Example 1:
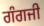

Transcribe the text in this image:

ਗੰਗਜੀ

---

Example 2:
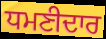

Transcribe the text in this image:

ਧਮਣੀਦਾਰ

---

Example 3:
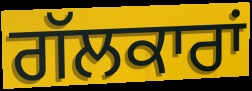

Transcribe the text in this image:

ਗੱਲਕਾਰਾਂ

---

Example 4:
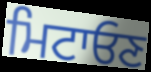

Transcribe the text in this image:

ਮਿਟਾਓਣ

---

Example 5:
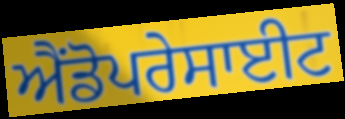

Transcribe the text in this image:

ਐਂਡੋਪਰੇਸਾਈਟ